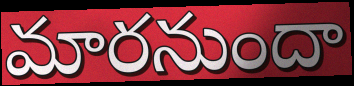
మారనుందా